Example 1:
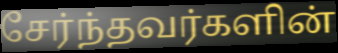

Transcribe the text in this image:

சேர்ந்தவர்களின்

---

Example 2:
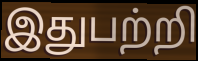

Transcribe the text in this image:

இதுபற்றி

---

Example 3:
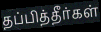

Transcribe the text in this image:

தப்பித்தீர்கள்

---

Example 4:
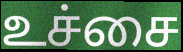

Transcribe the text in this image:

உச்சை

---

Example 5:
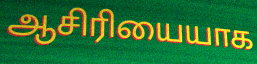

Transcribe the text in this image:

ஆசிரியையாக